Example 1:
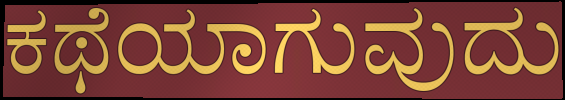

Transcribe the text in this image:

ಕಥೆಯಾಗುವುದು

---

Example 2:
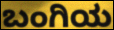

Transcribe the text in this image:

ಬಂಗಿಯ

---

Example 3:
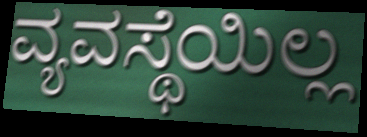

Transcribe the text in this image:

ವ್ಯವಸ್ಥೆಯಿಲ್ಲ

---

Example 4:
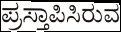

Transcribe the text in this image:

ಪ್ರಸ್ತಾಪಿಸಿರುವ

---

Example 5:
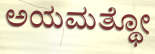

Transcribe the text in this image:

ಅಯಮತ್ಥೋ